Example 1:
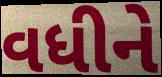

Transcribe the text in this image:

વધીને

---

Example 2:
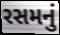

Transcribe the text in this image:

રસમનું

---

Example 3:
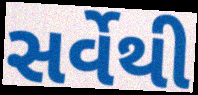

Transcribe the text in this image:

સર્વેથી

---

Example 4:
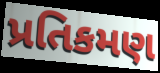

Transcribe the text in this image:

પ્રતિકમણ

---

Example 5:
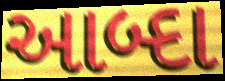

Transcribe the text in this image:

આબ્દા